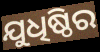
ଯୁଧିଷ୍ଠିର